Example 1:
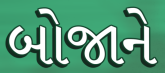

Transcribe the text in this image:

બોજાને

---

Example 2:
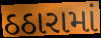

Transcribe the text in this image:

ઠઠારામાં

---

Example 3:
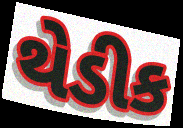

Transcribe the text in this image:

થેડીક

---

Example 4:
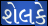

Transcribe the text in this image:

શેલકે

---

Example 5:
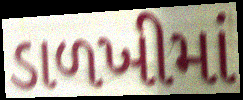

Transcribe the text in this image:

ડાળખીમાં